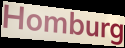
Homburg